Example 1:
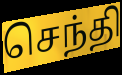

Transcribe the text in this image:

செந்தி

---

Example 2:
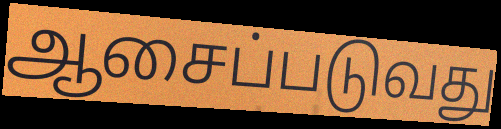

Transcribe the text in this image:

ஆசைப்படுவது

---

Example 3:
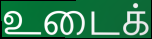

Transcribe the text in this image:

உடைக்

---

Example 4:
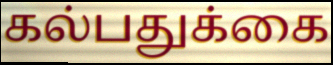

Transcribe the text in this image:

கல்பதுக்கை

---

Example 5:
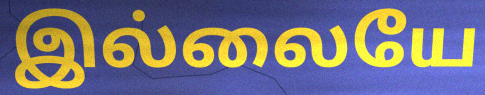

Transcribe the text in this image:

இல்லையே